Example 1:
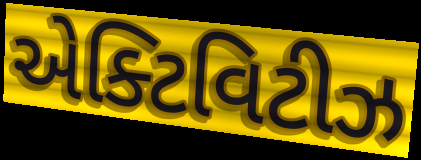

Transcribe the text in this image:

એક્ટિવિટીઝ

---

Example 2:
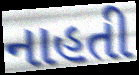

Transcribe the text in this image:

નાહતી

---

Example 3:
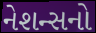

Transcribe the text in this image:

નેશન્સનો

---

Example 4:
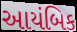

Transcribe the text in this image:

આયંબિક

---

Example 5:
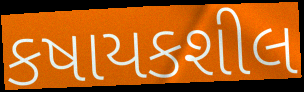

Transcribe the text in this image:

કષાયકશીલ